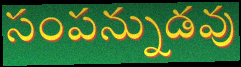
సంపన్నుడవు